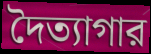
দৈত্যাগার